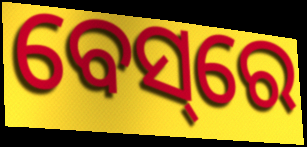
ବେସ୍‌ରେ